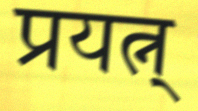
प्रयत्न्